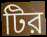
টির